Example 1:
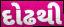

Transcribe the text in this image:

દોઢથી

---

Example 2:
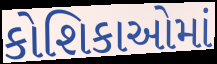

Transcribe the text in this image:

કોશિકાઓમાં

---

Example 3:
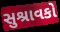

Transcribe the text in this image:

સુશ્રાવકો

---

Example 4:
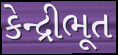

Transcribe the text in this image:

કેન્દ્રીભૂત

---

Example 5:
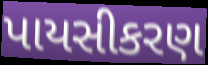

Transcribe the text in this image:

પાયસીકરણ